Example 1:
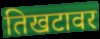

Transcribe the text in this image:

तिखटावर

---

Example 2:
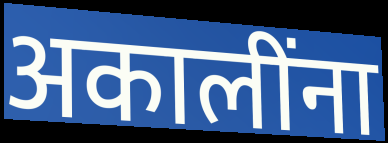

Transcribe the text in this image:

अकालींना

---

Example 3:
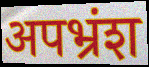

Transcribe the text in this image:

अपभ्रंश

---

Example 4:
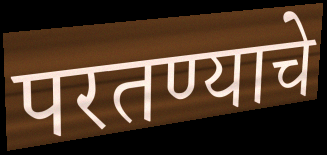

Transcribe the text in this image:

परतण्याचे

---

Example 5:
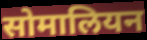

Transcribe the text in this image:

सोमालियन